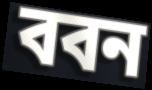
ববন